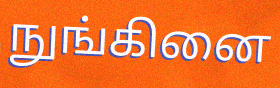
நுங்கினை